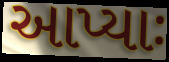
આપ્યાઃ